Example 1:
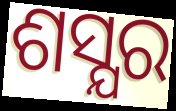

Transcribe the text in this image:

ଶସ୍ଯର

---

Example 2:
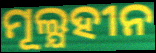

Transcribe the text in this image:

ମୂଲ୍ଯହୀନ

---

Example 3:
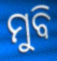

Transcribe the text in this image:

ମୁବି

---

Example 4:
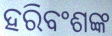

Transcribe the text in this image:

ହରିବଂଶଙ୍କ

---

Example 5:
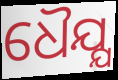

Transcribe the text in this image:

ଧୈଯ୍ଯ